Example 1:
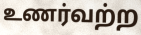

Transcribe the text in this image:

உணர்வற்ற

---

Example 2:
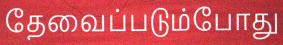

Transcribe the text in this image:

தேவைப்படும்போது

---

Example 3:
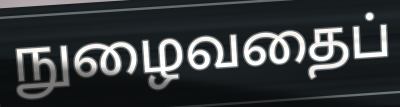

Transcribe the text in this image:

நுழைவதைப்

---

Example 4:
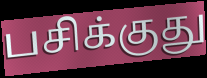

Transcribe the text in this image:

பசிக்குது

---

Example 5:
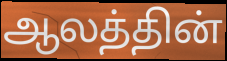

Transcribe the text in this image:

ஆலத்தின்